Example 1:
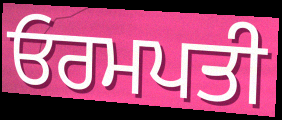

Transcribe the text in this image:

ਓਰਮਪਤੀ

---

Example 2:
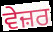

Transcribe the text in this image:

ਵੇਜ਼ਰ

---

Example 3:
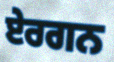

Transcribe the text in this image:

ਏਰਗਨ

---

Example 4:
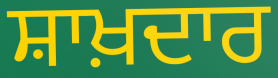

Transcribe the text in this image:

ਸ਼ਾਖ਼ਦਾਰ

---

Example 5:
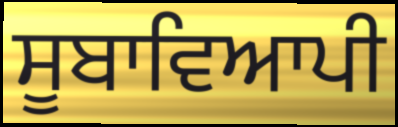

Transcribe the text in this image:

ਸੂਬਾਵਿਆਪੀ